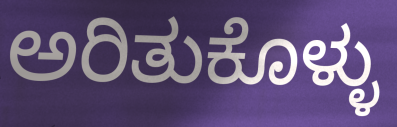
ಅರಿತುಕೊಳ್ಳು